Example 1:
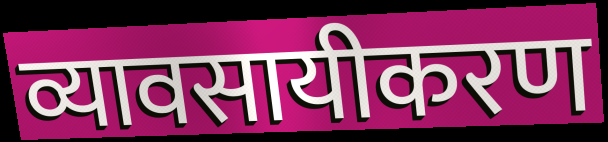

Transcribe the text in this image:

व्यावसायीकरण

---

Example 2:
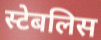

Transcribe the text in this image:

स्टेबलिस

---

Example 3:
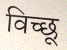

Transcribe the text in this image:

विच्छू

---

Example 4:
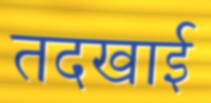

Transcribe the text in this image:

तदखाई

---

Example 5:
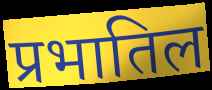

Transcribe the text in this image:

प्रभातिल